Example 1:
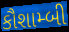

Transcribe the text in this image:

કૌશામ્બી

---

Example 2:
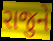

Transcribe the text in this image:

રાજુને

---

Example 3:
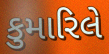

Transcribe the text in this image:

કુમારિલે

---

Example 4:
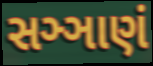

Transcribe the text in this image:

સઞ્ઞાણં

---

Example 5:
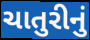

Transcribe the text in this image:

ચાતુરીનું